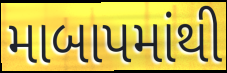
માબાપમાંથી